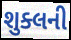
શુક્લની